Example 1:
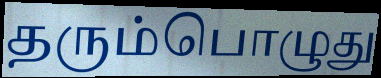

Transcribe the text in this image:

தரும்பொழுது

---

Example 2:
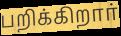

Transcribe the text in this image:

பறிக்கிறார்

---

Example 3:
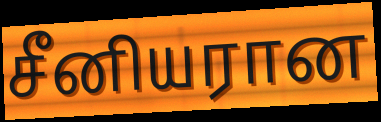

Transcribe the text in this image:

சீனியரான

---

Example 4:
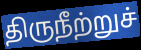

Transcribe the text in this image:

திருநீற்றுச்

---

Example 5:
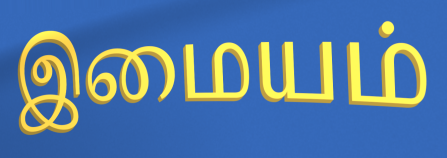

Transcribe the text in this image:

இமையம்